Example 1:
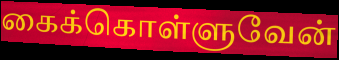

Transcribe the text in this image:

கைக்கொள்ளுவேன்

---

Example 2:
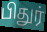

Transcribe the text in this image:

பிதுர்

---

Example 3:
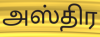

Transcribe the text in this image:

அஸ்திர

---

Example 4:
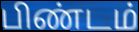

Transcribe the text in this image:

பிண்டம்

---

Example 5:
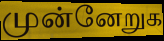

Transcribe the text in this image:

முன்னேறுக